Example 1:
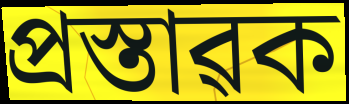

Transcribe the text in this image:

প্ৰস্তাৱক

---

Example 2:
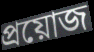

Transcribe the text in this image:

প্ৰয়োজ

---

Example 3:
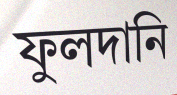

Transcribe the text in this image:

ফুলদানি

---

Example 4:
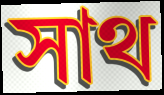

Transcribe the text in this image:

সাথ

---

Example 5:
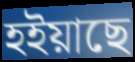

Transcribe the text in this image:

হইয়াছে